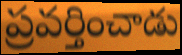
ప్రవర్తించాడు